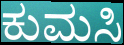
ಕುಮಸಿ